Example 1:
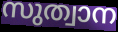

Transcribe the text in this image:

സുത്വാന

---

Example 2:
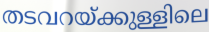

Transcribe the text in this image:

തടവറയ്ക്കുള്ളിലെ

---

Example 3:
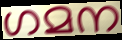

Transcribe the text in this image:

ഗമന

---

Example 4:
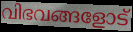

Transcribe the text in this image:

വിഭവങ്ങളോട്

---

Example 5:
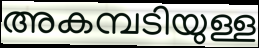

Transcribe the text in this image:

അകമ്പടിയുള്ള